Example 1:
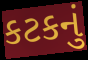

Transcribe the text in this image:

કટકનું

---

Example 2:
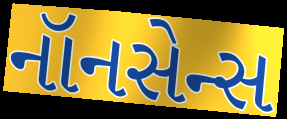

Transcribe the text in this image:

નૉનસેન્સ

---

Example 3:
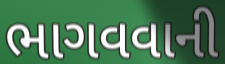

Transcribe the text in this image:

ભાગવવાની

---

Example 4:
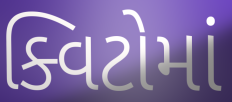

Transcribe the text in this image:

ક્વિટોમાં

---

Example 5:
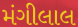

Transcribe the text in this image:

મંગીલાલ